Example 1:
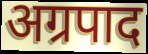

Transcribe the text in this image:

अग्रपाद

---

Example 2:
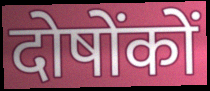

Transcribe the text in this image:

दोषोंकों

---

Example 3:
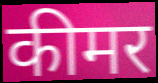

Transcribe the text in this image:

कीमर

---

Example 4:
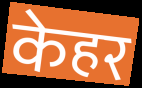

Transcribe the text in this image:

केहर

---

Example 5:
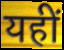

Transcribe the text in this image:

यहीं